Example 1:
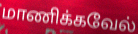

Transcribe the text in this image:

மாணிக்கவேல்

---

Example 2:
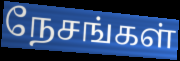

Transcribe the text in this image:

நேசங்கள்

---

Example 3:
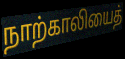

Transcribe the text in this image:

நாற்காலியைத்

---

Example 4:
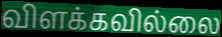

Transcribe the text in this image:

விளக்கவில்லை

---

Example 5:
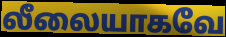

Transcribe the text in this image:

லீலையாகவே